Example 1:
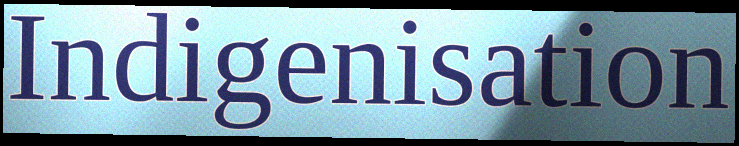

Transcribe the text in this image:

Indigenisation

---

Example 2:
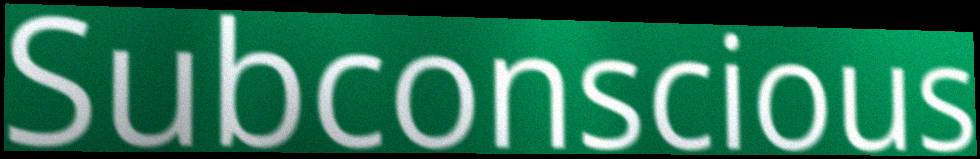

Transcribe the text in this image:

Subconscious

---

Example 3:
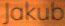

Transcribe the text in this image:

Jakub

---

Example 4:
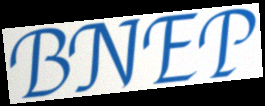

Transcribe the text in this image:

BNEP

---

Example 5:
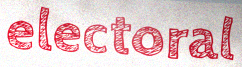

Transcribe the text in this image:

electoral